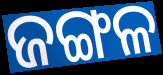
ଜଙ୍ଗଳ